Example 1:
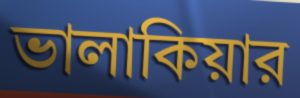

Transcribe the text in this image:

ভালাকিয়ার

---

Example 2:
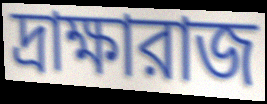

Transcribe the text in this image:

দ্রাক্ষারাজ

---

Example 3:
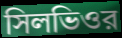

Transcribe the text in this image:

সিলভিওর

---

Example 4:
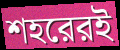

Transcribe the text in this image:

শহরেরই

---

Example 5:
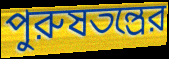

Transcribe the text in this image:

পুরুষতন্ত্রের